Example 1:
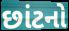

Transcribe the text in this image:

છાંટનો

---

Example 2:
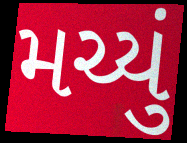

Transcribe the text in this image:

મચ્યું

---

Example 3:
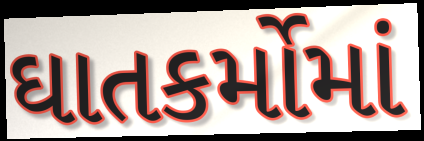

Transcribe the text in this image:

ઘાતકર્મોમાં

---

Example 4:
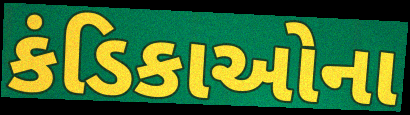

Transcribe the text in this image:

કંડિકાઓના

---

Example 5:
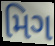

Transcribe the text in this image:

મિગ